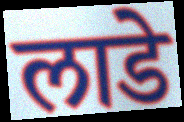
लाडे